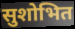
सुशोभित